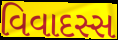
વિવાદસ્સ